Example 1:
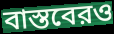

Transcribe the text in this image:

বাস্তবেরও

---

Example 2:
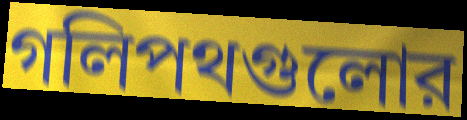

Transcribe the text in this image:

গলিপথগুলোর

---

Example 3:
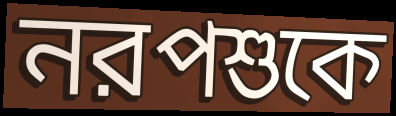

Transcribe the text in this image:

নরপশুকে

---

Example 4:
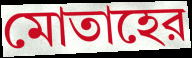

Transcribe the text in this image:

মোতাহের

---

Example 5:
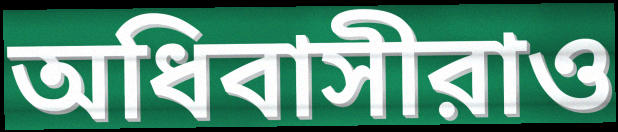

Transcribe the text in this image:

অধিবাসীরাও